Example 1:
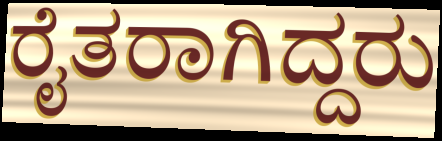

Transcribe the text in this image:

ರೈತರಾಗಿದ್ದರು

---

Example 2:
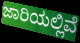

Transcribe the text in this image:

ಜಾರಿಯಲ್ಲಿವೆ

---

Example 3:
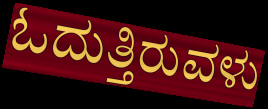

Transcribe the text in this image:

ಓದುತ್ತಿರುವಳು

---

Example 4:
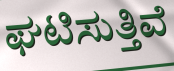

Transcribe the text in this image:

ಘಟಿಸುತ್ತಿವೆ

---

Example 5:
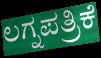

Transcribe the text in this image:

ಲಗ್ನಪತ್ರಿಕೆ